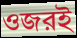
ওজরই